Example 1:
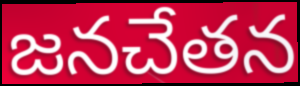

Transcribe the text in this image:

జనచేతన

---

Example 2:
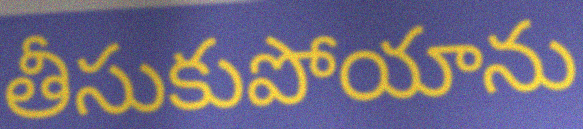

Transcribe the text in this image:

తీసుకుపోయాను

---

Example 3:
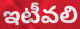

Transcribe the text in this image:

ఇటీవలి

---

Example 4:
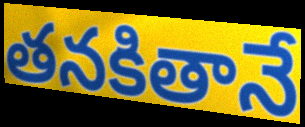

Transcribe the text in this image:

తనకితానే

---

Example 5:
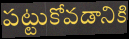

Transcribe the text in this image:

పట్టుకోవడానికి